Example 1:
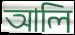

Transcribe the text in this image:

আলি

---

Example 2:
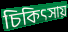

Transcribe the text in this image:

চিকিৎসায়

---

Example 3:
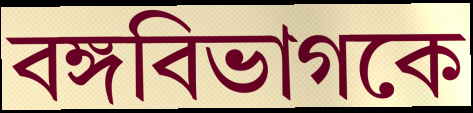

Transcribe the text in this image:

বঙ্গবিভাগকে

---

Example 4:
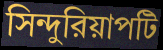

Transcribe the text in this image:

সিন্দুরিয়াপটি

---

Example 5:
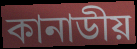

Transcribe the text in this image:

কানাডীয়